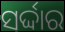
ସର୍ଦ୍ଦାର